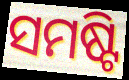
ସମଷ୍ଟି